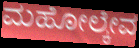
ಮಹೋಲ್ಕೇವ